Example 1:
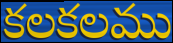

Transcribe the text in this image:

కలకలము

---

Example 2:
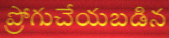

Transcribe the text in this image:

ప్రోగుచేయబడిన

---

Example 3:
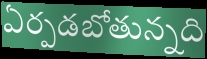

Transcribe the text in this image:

ఏర్పడబోతున్నది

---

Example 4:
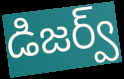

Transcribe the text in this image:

డిజర్వ్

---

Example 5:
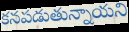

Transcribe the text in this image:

కనపడుతున్నాయని